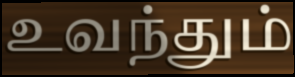
உவந்தும்